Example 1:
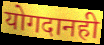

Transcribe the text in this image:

योगदानही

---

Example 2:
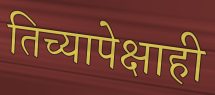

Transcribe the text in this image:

तिच्यापेक्षाही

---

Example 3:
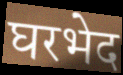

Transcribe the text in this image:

घरभेद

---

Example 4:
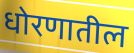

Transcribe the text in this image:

धोरणातील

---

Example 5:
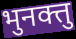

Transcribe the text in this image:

भुनक्तु